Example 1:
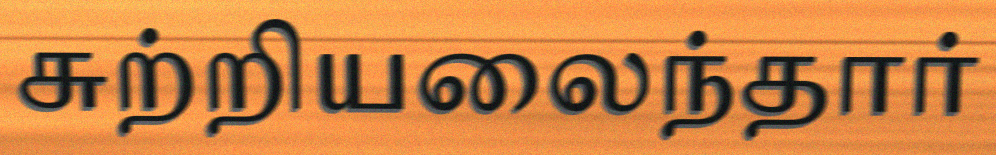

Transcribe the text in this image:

சுற்றியலைந்தார்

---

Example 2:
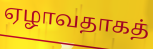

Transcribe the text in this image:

ஏழாவதாகத்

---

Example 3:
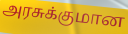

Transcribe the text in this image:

அரசுக்குமான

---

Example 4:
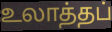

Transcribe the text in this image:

உலாத்தப்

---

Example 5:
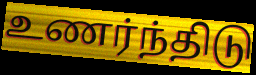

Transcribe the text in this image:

உணர்ந்திடு